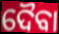
ଦୈବା